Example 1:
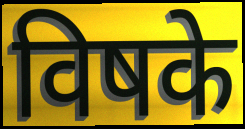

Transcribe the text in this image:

विषके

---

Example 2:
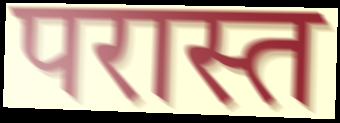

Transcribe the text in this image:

परास्त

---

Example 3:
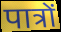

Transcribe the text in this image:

पात्रों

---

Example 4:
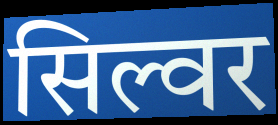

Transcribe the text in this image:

सिल्‍वर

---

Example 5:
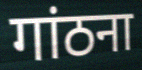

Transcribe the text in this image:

गांठना